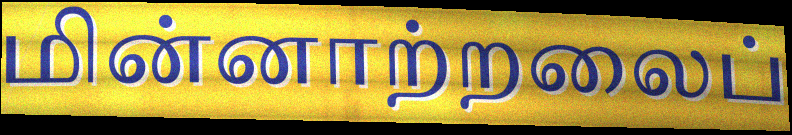
மின்னாற்றலைப்